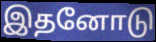
இதனோடு